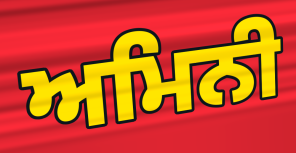
ਅਮਿਨੀ